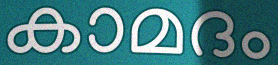
കാമദം